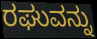
ರಘುವನ್ನು